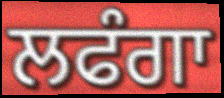
ਲਫੰਗਾ